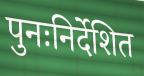
पुनःनिर्देशित